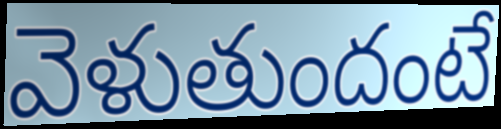
వెళుతుందంటే